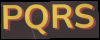
PQRS